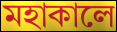
মহাকালে